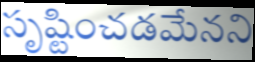
సృష్టించడమేనని